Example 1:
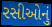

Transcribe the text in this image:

રસીઓનું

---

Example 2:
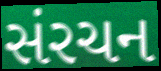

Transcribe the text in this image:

સંરચન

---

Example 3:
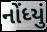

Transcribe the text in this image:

નોંધ્યું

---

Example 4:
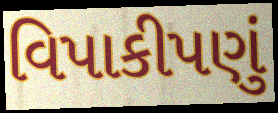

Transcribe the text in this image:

વિપાકીપણું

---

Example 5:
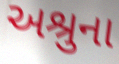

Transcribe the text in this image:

અશ્રુના